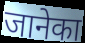
जानेका